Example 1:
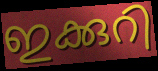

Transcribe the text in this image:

ഇക്കുറി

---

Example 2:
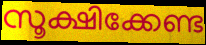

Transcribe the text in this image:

സൂക്ഷിക്കേണ്ട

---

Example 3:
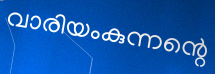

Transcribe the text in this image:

വാരിയംകുന്നന്റെ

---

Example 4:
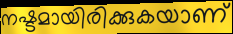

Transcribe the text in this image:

നഷ്ടമായിരിക്കുകയാണ്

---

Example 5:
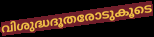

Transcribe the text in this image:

വിശുദ്ധദൂതരോടുകൂടെ